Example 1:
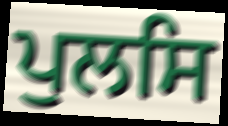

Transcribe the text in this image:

ਪੁਲਸਿ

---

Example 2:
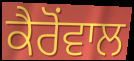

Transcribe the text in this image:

ਕੈਰੋਂਵਾਲ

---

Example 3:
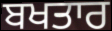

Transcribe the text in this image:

ਬਖਤਾਰ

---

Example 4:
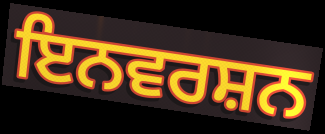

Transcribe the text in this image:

ਇਨਵਰਸ਼ਨ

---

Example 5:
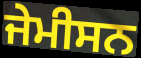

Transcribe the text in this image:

ਜੇਮੀਸਨ